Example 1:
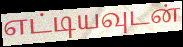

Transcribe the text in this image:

எட்டியவுடன்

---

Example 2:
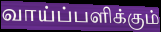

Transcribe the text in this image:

வாய்ப்பளிக்கும்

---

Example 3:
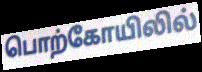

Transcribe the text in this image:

பொற்கோயிலில்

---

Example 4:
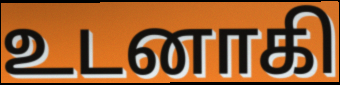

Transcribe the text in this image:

உடனாகி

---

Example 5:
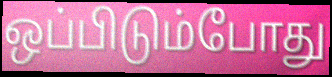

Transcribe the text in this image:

ஒப்பிடும்போது